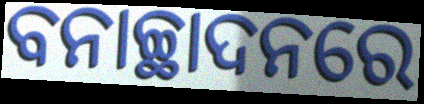
ବନାଚ୍ଛାଦନରେ